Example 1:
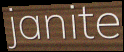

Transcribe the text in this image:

janite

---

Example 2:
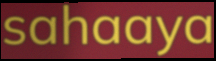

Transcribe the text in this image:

sahaaya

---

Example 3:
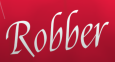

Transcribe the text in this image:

Robber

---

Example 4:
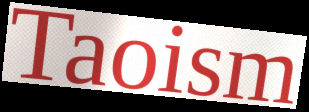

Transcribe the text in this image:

Taoism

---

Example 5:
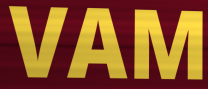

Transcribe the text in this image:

VAM